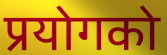
प्रयोगको